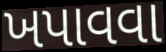
ખપાવવા